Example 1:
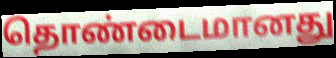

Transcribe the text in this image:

தொண்டைமானது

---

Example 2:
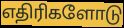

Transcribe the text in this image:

எதிரிகளோடு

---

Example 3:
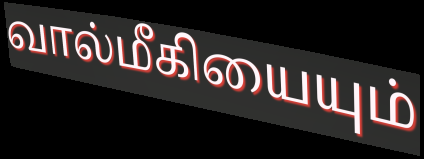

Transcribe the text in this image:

வால்மீகியையும்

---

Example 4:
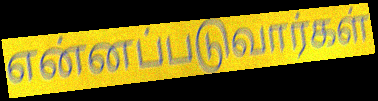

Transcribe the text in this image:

என்னப்படுவார்கள்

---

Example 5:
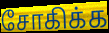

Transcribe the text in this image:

சோகிக்க